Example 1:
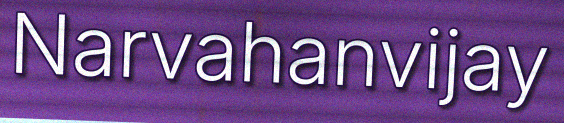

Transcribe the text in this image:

Narvahanvijay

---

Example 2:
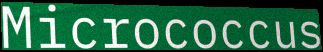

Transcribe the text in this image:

Micrococcus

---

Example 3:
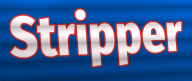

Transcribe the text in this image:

Stripper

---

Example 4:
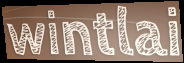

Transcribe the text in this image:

wintlai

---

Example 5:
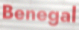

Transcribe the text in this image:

Benegal